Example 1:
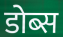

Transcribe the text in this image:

डोब्स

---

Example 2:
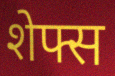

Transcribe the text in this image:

शेफ्स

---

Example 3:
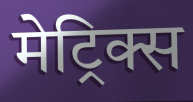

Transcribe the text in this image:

मेट्रिक्स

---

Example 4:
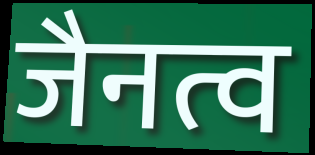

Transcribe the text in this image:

जैनत्व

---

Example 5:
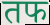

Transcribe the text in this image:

तफ